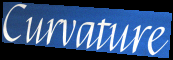
Curvature